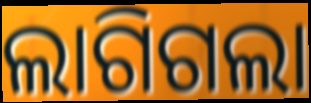
ଲାଗିଗଲା